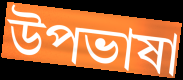
উপভাষা